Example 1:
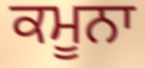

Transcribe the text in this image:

ਕਮੂਨਾ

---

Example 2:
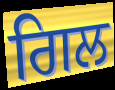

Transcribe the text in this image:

ਗਿਲ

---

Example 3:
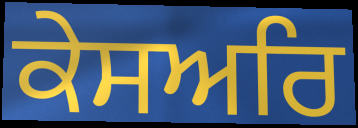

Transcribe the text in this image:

ਕੇਸਅਰਿ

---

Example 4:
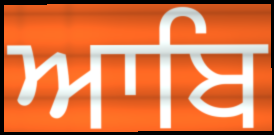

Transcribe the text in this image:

ਆਬਿ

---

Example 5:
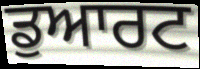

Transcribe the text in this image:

ਡੁਆਰਟ